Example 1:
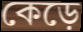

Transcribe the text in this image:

কেড়ে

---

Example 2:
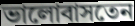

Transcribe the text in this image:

ভালোবাসতেন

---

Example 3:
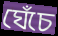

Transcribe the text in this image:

ঘেঁচে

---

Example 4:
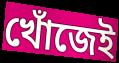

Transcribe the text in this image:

খোঁজেই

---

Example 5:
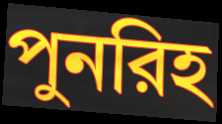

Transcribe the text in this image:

পুনরিহ